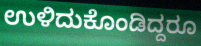
ಉಳಿದುಕೊಂಡಿದ್ದರೂ